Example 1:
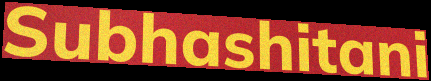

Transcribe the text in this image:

Subhashitani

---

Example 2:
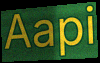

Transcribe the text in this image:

Aapi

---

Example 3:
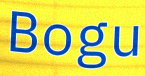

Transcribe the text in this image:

Bogu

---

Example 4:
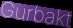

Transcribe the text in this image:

Gurbakt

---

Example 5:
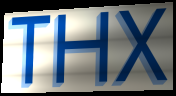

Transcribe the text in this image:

THX